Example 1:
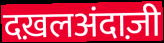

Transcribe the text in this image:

दख़लअंदाज़ी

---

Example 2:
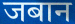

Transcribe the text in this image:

जबान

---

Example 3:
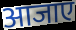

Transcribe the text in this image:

आजाए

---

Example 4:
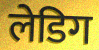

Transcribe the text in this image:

लेडिग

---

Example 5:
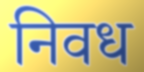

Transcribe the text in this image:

निवध